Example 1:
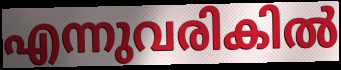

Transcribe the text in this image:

എന്നുവരികിൽ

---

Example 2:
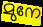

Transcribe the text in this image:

മുനേ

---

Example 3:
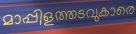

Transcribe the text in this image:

മാപ്പിളത്തടവുകാരെ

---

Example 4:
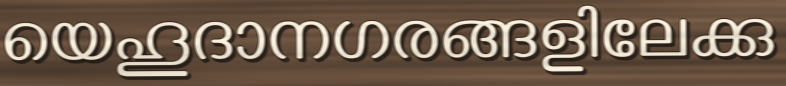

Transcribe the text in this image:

യെഹൂദാനഗരങ്ങളിലേക്കു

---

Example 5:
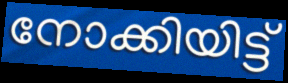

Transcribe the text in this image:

നോക്കിയിട്ട്